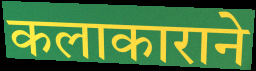
कलाकाराने